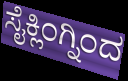
ಸೈಕ್ಲಿಂಗ್ನಿಂದ